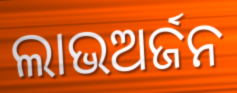
ଲାଭଅର୍ଜନ